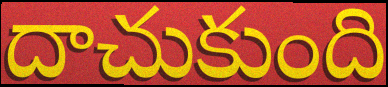
దాచుకుంది